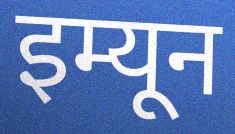
इम्यून